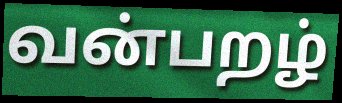
வன்பறழ்